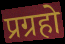
प्रग्रहो